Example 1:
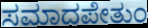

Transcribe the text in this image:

ಸಮಾದಪೇತುಂ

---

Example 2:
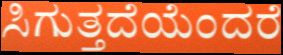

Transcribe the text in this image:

ಸಿಗುತ್ತದೆಯೆಂದರೆ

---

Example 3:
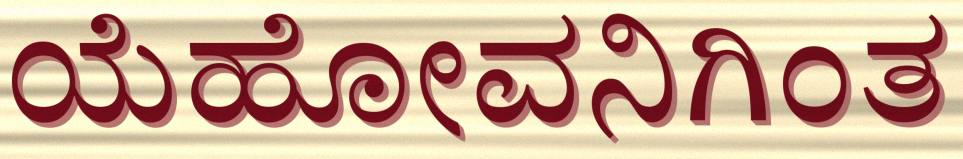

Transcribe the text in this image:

ಯೆಹೋವನಿಗಿಂತ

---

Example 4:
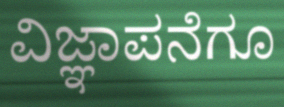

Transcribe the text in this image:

ವಿಜ್ಞಾಪನೆಗೂ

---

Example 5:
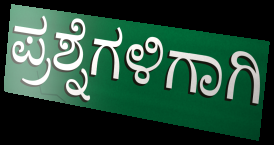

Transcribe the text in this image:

ಪ್ರಶ್ನೆಗಳಿಗಾಗಿ